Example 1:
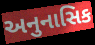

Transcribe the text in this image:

અનુનાસિક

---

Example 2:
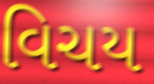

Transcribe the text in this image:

વિચય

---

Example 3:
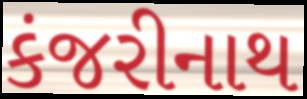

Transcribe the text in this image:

કંજરીનાથ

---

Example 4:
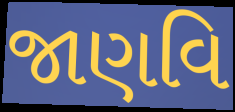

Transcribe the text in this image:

જાણવિ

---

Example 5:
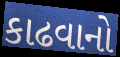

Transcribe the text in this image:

કાઢવાનો